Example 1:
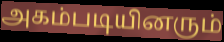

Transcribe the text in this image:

அகம்படியினரும்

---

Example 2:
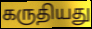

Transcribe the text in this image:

கருதியது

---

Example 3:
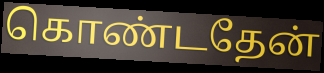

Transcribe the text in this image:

கொண்டதேன்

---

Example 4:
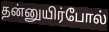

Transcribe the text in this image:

தன்னுயிர்போல்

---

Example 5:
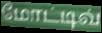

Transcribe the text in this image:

மோட்டிவ்